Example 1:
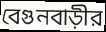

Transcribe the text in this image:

বেগুনবাড়ীর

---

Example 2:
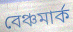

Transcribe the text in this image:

বেঞ্চমার্ক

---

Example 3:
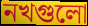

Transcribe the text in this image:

নখগুলো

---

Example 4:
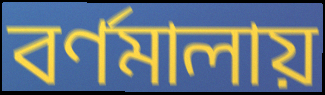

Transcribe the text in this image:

বর্ণমালায়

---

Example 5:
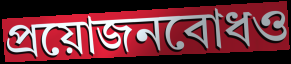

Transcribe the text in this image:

প্রয়োজনবোধও